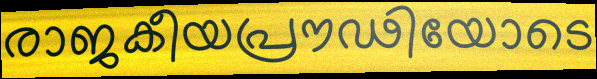
രാജകീയപ്രൗഢിയോടെ